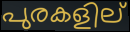
പുരകളില്